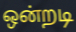
ஒன்றடி